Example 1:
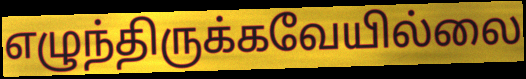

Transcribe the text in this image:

எழுந்திருக்கவேயில்லை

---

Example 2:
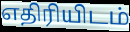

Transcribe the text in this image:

எதிரியிடம்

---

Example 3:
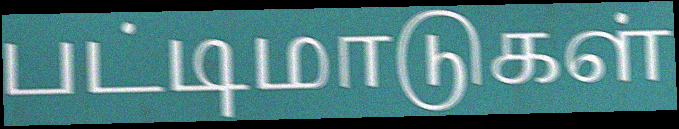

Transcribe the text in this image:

பட்டிமாடுகள்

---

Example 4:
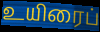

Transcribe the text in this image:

உயிரைப்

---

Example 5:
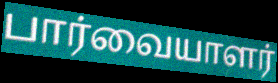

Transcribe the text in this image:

பார்வையாளர்